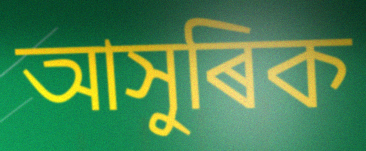
আসুৰিক